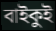
বাইকুই